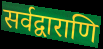
सर्वद्वाराणि